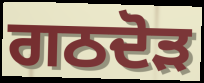
ਗਠਦੋੜ